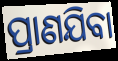
ପ୍ରାଣଯିବା